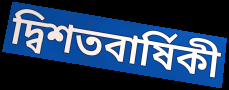
দ্বিশতবার্ষিকী